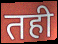
तही